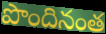
పొందినంత